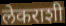
लेकराशी